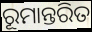
ରୂମାନ୍ତରିତ